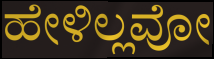
ಹೇಳಿಲ್ಲವೋ